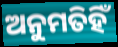
ଅନୁମତିହିଁ